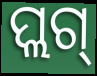
ପ୍ଲଗ୍